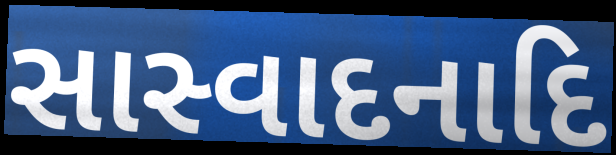
સાસ્વાદનાદિ